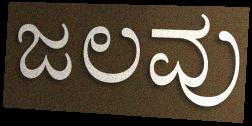
ಜಲವು